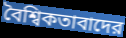
বৈশ্বিকতাবাদের